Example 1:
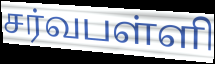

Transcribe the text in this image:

சர்வபள்ளி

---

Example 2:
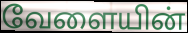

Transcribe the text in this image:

வேளையின்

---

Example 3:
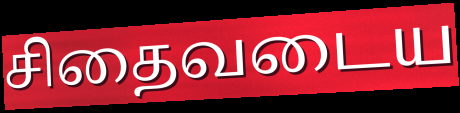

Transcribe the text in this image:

சிதைவடைய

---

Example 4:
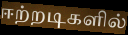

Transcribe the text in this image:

ஈற்றடிகளில்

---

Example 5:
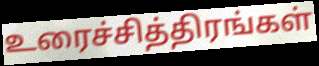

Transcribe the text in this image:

உரைச்சித்திரங்கள்